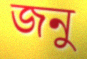
জনু